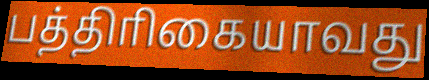
பத்திரிகையாவது